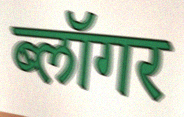
ब्लॉगर